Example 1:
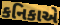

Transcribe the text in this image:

કનિકાએ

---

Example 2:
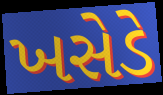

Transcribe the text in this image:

ખસેડે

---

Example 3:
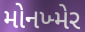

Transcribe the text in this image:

મોનખ્મેર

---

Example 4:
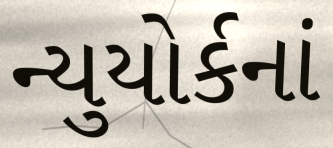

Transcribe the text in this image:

ન્યુયોર્કનાં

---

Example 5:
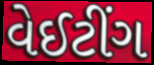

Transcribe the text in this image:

વેઈટીંગ